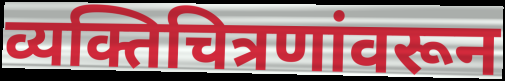
व्यक्तिचित्रणांवरून